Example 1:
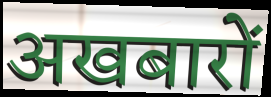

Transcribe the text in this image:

अखबारों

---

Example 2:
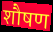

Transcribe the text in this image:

शौषण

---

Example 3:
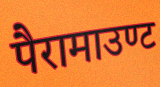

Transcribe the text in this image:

पैरामाउण्ट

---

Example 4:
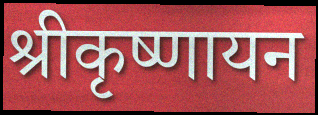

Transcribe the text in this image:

श्रीकृष्णायन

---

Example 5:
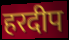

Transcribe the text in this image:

हरदीप